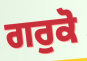
ਗਰੁਕੋ